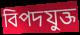
বিপদযুক্ত